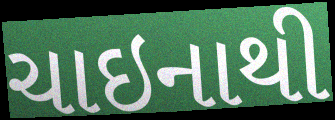
ચાઇનાથી